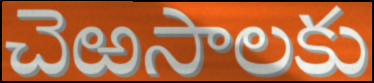
చెఱసాలకు